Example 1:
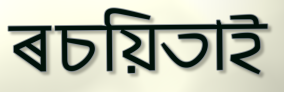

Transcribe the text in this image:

ৰচয়িতাই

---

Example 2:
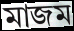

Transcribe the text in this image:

মাজম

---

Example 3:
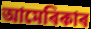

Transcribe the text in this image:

আমেৰিকাৰ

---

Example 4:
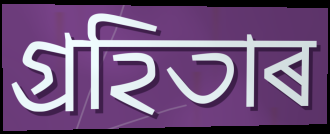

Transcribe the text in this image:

গ্ৰহিতাৰ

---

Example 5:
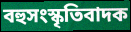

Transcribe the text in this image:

বহুসংস্কৃতিবাদক